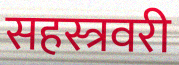
सहस्त्रवरी